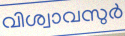
വിശ്വാവസുർ